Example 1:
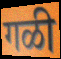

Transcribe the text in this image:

गळी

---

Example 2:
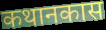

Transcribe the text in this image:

कथानकास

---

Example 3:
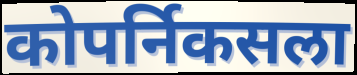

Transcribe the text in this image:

कोपर्निकसला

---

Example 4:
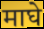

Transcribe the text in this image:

माघे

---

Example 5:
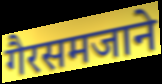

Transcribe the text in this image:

गैरसमजाने